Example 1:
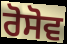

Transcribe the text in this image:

ਰੋਸੋਵ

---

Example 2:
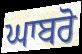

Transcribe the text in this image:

ਘਾਬਰੋ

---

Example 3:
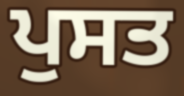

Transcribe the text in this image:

ਪੁਸਤ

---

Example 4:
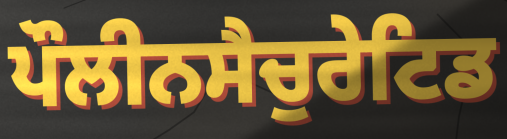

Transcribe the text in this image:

ਪੌਲੀਨਸੈਚੁਰੇਟਿਡ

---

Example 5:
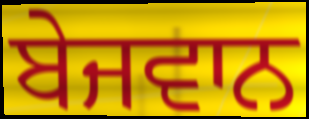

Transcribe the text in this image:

ਬੇਜਵਾਨ